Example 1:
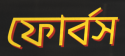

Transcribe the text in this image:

ফোর্বস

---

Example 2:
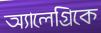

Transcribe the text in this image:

অ্যালেগ্রিকে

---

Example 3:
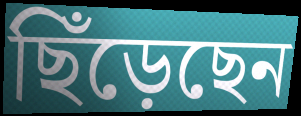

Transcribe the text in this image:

ছিঁড়েছেন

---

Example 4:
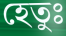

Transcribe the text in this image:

হেতুঃ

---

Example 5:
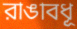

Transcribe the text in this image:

রাঙাবধূ